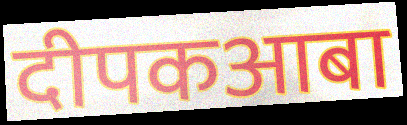
दीपकआबा